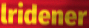
lridener